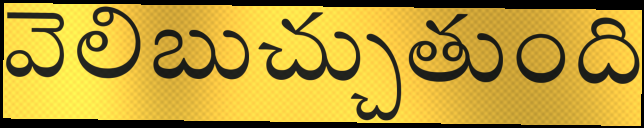
వెలిబుచ్చుతుంది